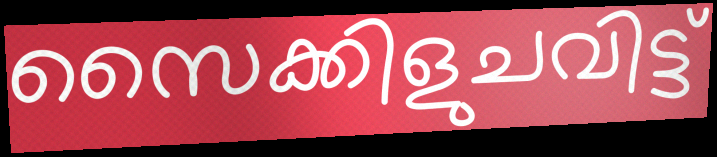
സൈക്കിളുചവിട്ട്